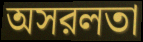
অসরলতা